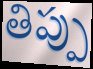
తిప్పు